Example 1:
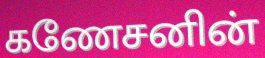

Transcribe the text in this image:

கணேசனின்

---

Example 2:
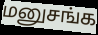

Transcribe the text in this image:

மனுசங்க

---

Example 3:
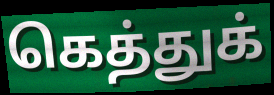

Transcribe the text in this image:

கெத்துக்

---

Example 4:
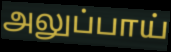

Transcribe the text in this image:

அலுப்பாய்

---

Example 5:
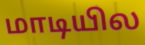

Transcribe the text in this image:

மாடியில